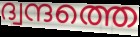
ദ്വന്ദത്തെ